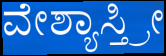
ವೇಶ್ಯಾಸ್ತ್ರೀ